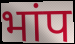
भांप